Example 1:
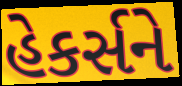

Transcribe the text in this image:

હેકર્સને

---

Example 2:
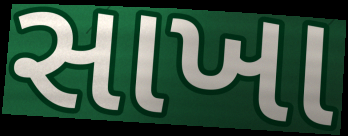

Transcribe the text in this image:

સાખા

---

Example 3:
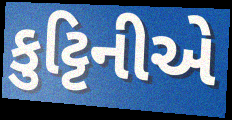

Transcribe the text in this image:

કુટ્ટિનીએ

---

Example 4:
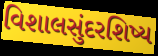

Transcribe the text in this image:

વિશાલસુંદરશિષ્ય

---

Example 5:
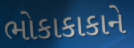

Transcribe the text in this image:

ભોકાકાકાને